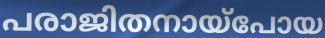
പരാജിതനായ്പോയ